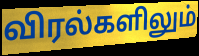
விரல்களிலும்